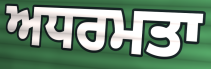
ਅਧਰਮਤਾ